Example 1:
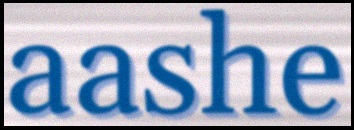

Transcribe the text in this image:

aashe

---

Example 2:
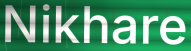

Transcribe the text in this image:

Nikhare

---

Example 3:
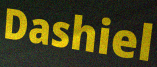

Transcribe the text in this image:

Dashiel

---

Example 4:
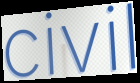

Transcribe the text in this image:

civil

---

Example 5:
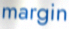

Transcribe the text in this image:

margin